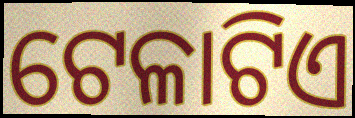
ଟେଳାଟିଏ